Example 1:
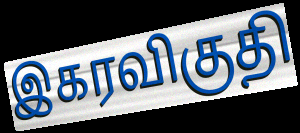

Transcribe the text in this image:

இகரவிகுதி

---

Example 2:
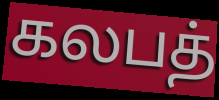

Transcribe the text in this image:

கலபத்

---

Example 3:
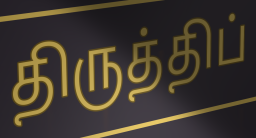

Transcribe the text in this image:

திருத்திப்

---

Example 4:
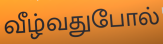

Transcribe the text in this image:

வீழ்வதுபோல்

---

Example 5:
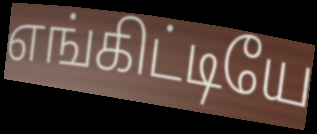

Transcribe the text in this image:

எங்கிட்டியே